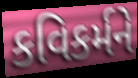
કવિકર્મને